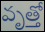
వృత్తో